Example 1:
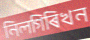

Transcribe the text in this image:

নিলগিৰিখন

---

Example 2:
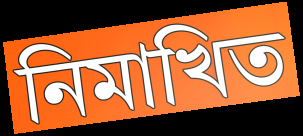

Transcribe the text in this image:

নিমাখিত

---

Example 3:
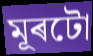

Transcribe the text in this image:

মূৰটো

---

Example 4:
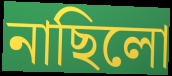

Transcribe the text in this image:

নাছিলো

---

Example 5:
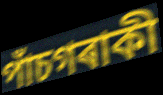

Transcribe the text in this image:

পাঁচগৰাকী